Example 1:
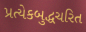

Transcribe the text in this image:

પ્રત્યેકબુદ્ધચરિત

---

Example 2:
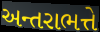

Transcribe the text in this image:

અન્તરાભત્તે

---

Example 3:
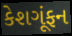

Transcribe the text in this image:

કેશગૂંફન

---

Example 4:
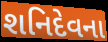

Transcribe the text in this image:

શનિદેવના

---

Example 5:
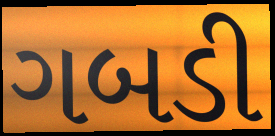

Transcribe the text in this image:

ગબડી